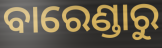
ବାରେଣ୍ଡାରୁ